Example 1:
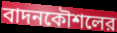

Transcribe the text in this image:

বাদনকৌশলের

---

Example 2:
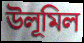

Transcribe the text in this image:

উলূমিল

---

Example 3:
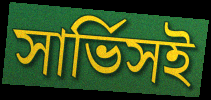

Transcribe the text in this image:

সার্ভিসই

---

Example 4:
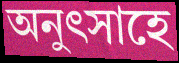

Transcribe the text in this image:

অনুৎসাহে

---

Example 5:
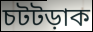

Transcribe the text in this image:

চটটড়াক